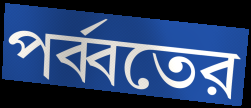
পর্ব্বতের